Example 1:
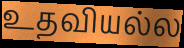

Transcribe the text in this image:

உதவியல்ல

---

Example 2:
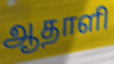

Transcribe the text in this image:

ஆதாளி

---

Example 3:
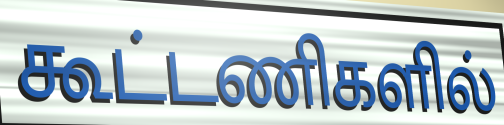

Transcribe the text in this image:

கூட்டணிகளில்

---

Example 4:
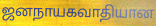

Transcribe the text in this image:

ஜனநாயகவாதியான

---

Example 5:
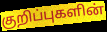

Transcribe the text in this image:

குறிப்புகளின்